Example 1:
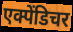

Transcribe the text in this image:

एक्पेंडिचर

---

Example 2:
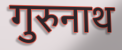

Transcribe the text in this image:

गुरुनाथ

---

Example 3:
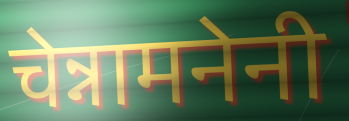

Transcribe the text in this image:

चेन्नामनेनी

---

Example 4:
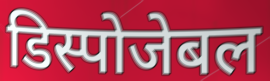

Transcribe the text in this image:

डिस्पोजेबल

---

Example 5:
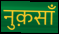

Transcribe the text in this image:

नुक़साँ